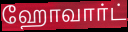
ஹோவார்ட்